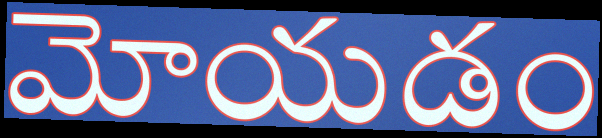
మోయడం